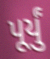
પૂર્યું